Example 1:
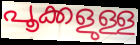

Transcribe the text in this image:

പൂക്കളുള്ള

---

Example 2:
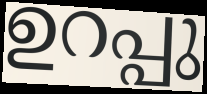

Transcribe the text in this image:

ഉറപ്പു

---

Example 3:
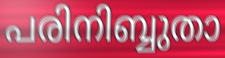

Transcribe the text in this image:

പരിനിബ്ബുതാ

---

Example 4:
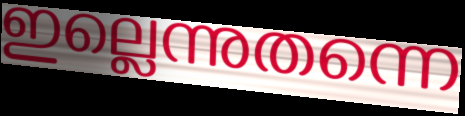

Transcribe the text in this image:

ഇല്ലെന്നുതന്നെ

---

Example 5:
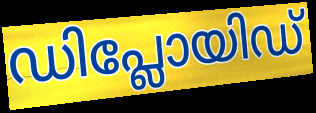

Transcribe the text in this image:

ഡിപ്ലോയിഡ്